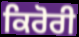
ਕਿਰੋਰੀ